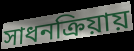
সাধনক্রিয়ায়